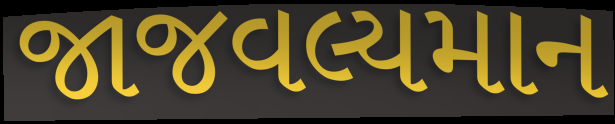
જાજવલ્યમાન